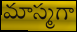
మాస్మగా